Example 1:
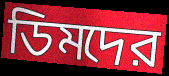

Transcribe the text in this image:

ডিমদের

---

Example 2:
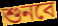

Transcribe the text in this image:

শুনবে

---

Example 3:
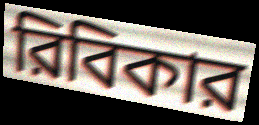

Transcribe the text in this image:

রিবিকার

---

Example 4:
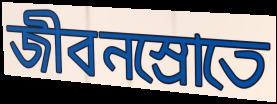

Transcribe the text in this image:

জীবনস্রোতে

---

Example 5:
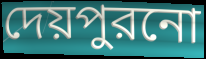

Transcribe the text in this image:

দেয়পুরনো